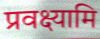
प्रवक्ष्यामि